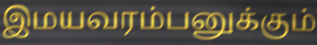
இமயவரம்பனுக்கும்